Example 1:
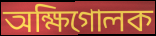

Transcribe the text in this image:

অক্ষিগোলক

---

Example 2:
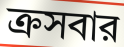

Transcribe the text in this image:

ক্রসবার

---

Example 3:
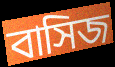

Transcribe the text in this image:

বাসিজ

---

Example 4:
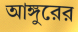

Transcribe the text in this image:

আঙ্গুরের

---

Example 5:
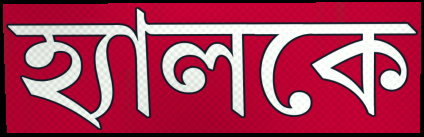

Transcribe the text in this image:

হ্যালকে